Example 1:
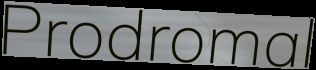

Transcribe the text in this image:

Prodromal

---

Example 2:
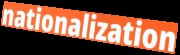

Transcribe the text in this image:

nationalization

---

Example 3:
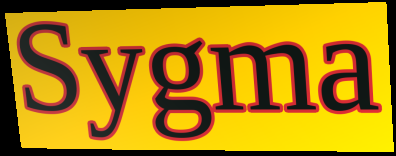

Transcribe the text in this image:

Sygma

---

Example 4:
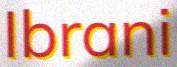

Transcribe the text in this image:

Ibrani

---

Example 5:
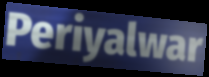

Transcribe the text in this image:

Periyalwar